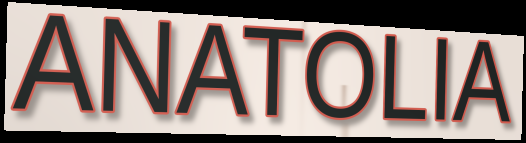
ANATOLIA